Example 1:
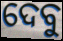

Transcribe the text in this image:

ଦେବୁ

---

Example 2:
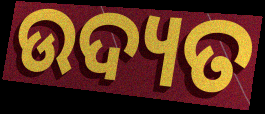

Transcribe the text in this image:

ଉଦ୍ୟତ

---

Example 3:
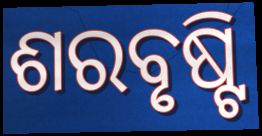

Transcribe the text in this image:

ଶରବୃଷ୍ଟି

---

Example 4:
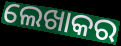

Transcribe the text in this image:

ଲେଖାକର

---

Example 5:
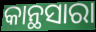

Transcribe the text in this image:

କାନ୍ଥସାରା